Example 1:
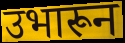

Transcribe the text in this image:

उभारून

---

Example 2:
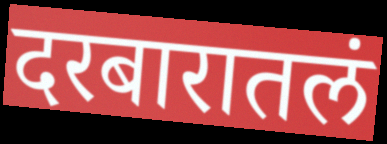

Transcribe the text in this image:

दरबारातलं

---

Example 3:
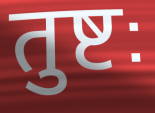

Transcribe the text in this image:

तुष्टः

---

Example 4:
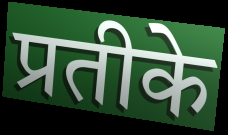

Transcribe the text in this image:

प्रतीके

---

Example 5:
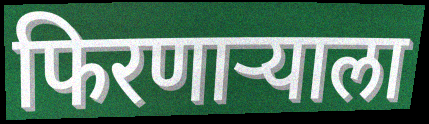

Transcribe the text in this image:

फिरणाऱ्याला